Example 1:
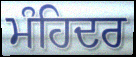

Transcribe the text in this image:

ਮੰਹਿਦਰ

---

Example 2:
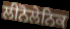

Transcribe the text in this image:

ਲੀਨੋਲੇਨਿਕ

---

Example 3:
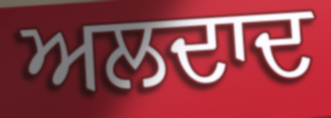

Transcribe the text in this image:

ਅਲਦਾਦ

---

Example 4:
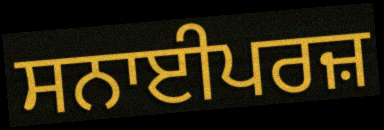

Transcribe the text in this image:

ਸਨਾਈਪਰਜ਼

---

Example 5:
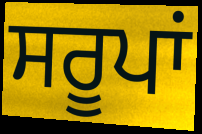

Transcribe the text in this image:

ਸਰੂਪਾਂ